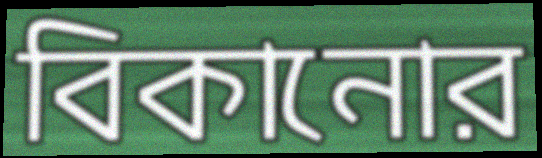
বিকানোর